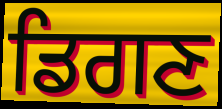
ਡਿਗਣ